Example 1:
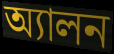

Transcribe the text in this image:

অ্যালন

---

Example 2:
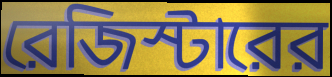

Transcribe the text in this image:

রেজিস্টারের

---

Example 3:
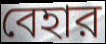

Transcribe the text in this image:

বেহার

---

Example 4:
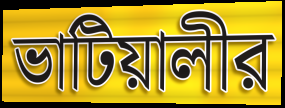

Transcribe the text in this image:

ভাটিয়ালীর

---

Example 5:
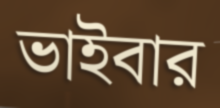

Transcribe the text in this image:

ভাইবার